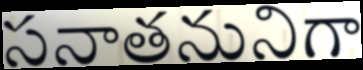
సనాతనునిగా